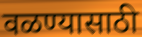
वळण्यासाठी